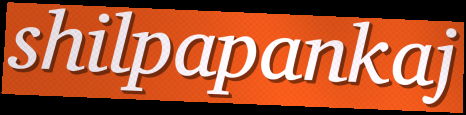
shilpapankaj